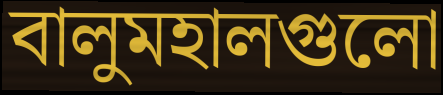
বালুমহালগুলো